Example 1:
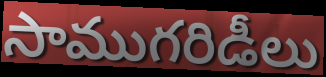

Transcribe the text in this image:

సాముగరిడీలు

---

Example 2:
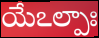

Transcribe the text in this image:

యేఽల్పాః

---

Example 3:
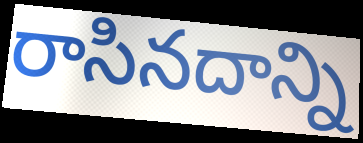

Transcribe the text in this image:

రాసినదాన్ని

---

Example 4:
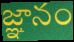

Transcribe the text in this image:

జ్ఞానం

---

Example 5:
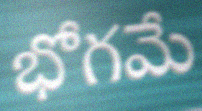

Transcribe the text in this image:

భోగమే